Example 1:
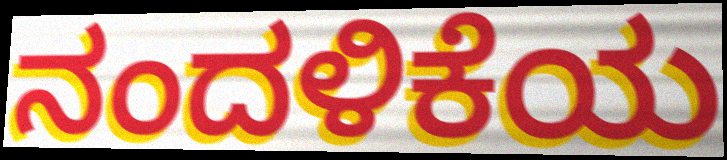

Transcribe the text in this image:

ನಂದಳಿಕೆಯ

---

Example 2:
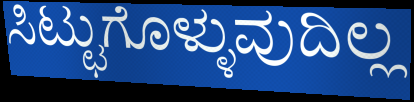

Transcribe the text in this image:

ಸಿಟ್ಟುಗೊಳ್ಳುವುದಿಲ್ಲ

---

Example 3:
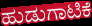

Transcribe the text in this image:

ಹುಡುಗಾಟಿಕೆ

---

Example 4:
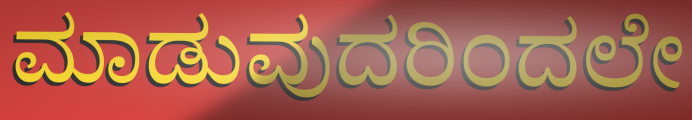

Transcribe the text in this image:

ಮಾಡುವುದರಿಂದಲೇ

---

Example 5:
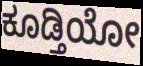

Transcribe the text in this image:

ಕೂಡ್ತಿಯೋ